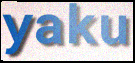
yaku